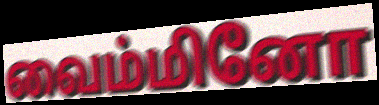
வைம்மினோ